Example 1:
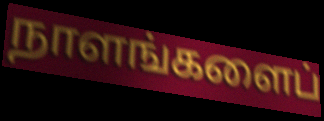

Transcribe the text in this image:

நாளங்களைப்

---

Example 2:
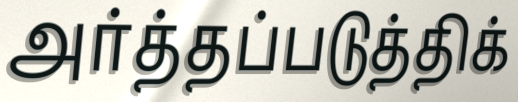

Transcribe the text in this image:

அர்த்தப்படுத்திக்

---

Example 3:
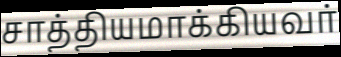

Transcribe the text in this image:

சாத்தியமாக்கியவர்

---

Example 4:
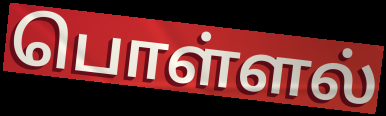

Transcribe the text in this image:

பொள்ளல்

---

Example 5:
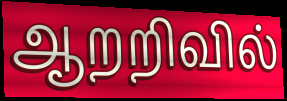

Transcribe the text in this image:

ஆறறிவில்